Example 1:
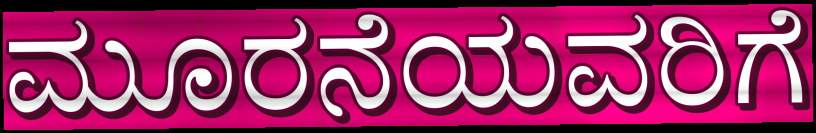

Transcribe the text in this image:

ಮೂರನೆಯವರಿಗೆ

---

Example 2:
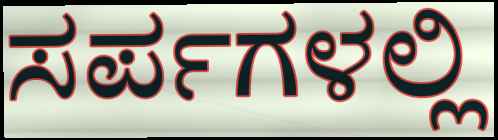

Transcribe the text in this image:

ಸರ್ಪಗಳಲ್ಲಿ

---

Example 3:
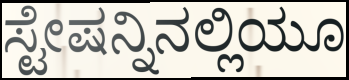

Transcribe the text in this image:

ಸ್ಟೇಷನ್ನಿನಲ್ಲಿಯೂ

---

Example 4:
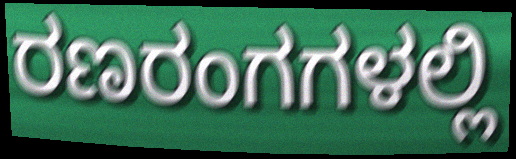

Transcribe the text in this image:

ರಣರಂಗಗಳಲ್ಲಿ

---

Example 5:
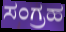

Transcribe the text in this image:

ಸಂಗ್ರಹ